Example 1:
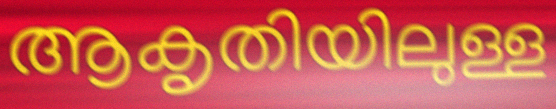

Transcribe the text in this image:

ആകൃതിയിലുള്ള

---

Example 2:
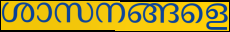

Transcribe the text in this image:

ശാസനങ്ങളെ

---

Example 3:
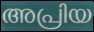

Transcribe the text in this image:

അപ്രിയ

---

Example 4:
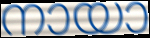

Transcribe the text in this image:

നായാ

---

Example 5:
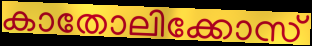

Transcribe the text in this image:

കാതോലിക്കോസ്